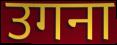
उगना